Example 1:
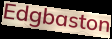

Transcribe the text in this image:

Edgbaston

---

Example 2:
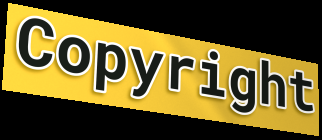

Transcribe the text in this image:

Copyright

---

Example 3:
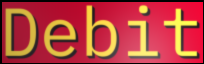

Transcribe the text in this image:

Debit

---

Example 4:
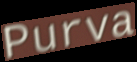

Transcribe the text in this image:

Purva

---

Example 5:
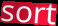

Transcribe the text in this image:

sort